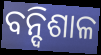
ବନ୍ଦିଶାଳ